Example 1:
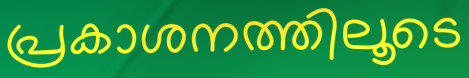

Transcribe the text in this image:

പ്രകാശനത്തിലൂടെ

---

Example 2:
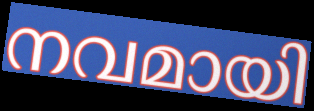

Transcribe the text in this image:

നവമായി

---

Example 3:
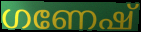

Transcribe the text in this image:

ഗണേഷ്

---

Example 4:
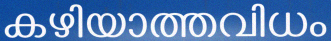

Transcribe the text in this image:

കഴിയാത്തവിധം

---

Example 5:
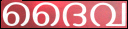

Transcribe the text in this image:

ദൈവ